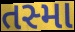
તસ્મા